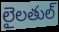
లైలతుల్